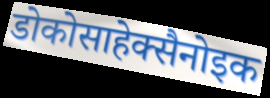
डोकोसाहेक्सैनोइक